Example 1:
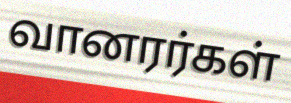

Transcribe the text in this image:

வானரர்கள்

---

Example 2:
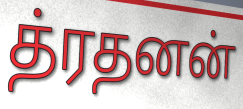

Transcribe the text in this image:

த்ரதனன்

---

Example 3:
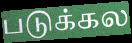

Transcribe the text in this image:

படுக்கல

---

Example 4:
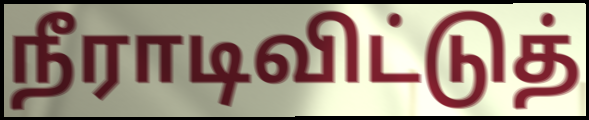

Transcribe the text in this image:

நீராடிவிட்டுத்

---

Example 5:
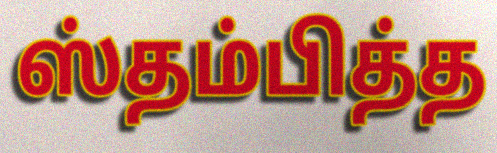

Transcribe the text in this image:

ஸ்தம்பித்த